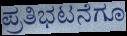
ಪ್ರತಿಭಟನೆಗೂ